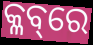
କ୍ଳବ୍‌ରେ